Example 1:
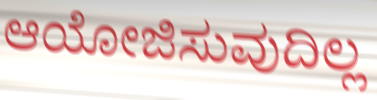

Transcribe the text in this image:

ಆಯೋಜಿಸುವುದಿಲ್ಲ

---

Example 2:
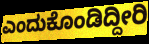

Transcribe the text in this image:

ಎಂದುಕೊಂಡಿದ್ದೀರಿ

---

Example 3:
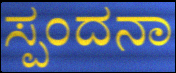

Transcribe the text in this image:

ಸ್ಪಂದನಾ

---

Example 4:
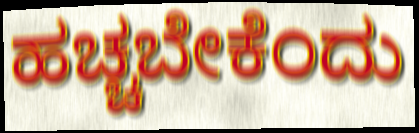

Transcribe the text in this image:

ಹಚ್ಚಬೇಕೆಂದು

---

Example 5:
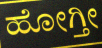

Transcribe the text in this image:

ಹೋಗ್ತೀ